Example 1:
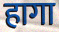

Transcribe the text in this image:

हागा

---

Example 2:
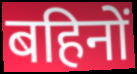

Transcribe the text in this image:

बहिनों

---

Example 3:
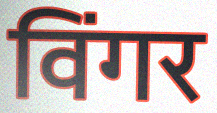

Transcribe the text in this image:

विंगर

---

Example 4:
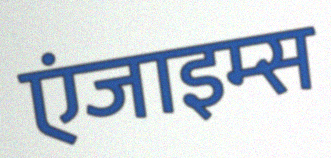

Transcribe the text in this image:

एंजाइम्‍स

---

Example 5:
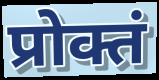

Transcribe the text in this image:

प्रोक्तं